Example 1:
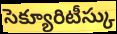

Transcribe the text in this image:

సెక్యూరిటీస్కు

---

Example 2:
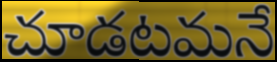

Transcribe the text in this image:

చూడటమనే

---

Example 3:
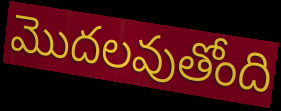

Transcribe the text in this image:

మొదలవుతోంది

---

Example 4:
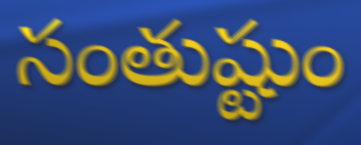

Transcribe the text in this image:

సంతుష్టుం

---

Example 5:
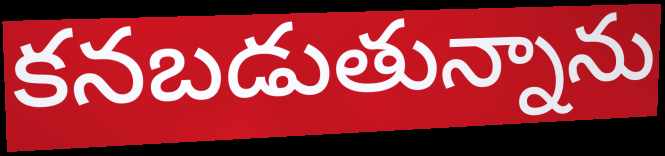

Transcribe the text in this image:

కనబడుతున్నాను